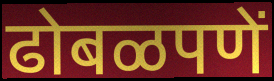
ढोबळपणें